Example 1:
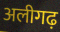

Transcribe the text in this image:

अलीगढ़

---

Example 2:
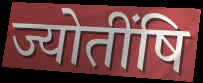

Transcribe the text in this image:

ज्योतींषि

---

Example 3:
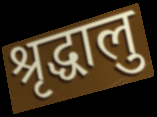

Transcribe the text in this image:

श्रृद्धालु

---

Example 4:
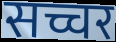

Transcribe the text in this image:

सच्चर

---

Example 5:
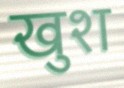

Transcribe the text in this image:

खुश